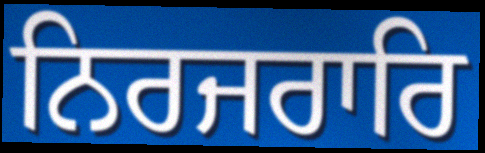
ਨਿਰਜਰਾਰਿ